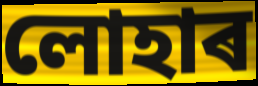
লোহাৰ